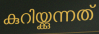
കുറിയ്ക്കുന്നത്